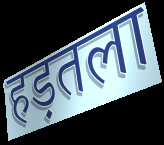
हड़तला